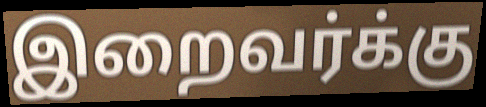
இறைவர்க்கு